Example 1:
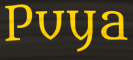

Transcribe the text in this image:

Puya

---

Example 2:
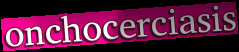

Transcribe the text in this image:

onchocerciasis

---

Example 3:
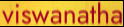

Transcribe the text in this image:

viswanatha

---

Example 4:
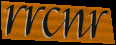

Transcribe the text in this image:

rrcnr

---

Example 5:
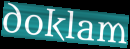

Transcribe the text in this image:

doklam